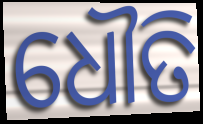
ଧୌତି